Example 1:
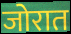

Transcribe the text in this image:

जोरात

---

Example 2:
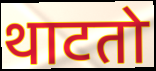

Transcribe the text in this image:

थाटतो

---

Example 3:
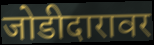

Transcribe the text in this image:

जोडीदारावर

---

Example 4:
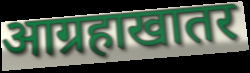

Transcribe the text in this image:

आग्रहाखातर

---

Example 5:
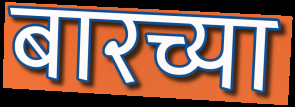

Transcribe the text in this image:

बारच्या